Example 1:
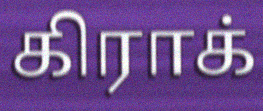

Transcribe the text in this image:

கிராக்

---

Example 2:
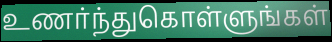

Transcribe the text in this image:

உணர்ந்துகொள்ளுங்கள்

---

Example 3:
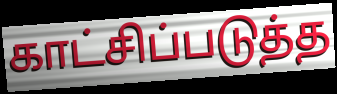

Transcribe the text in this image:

காட்சிப்படுத்த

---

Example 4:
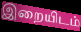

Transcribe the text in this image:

இறையிடம்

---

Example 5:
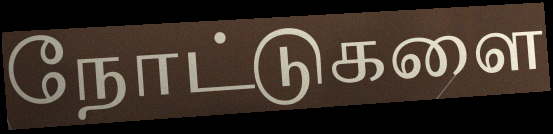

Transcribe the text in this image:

நோட்டுகளை